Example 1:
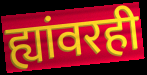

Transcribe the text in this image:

ह्यांवरही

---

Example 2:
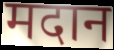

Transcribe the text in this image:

मदान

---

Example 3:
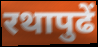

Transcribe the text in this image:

रथापुढें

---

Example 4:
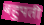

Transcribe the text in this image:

बहुपती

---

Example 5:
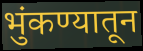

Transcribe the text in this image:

भुंकण्यातून